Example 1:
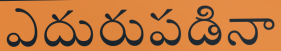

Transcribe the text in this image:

ఎదురుపడినా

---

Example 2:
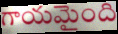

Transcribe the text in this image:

గాయమైంది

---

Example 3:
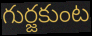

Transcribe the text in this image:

గుర్జకుంట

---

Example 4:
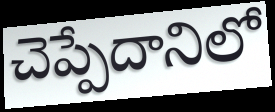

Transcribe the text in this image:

చెప్పేదానిలో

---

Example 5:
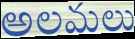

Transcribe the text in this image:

అలమలు